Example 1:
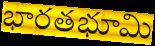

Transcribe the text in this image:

భారతభూమి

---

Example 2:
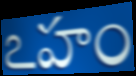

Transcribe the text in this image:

ఽహం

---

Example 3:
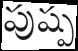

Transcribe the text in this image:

పుష్ప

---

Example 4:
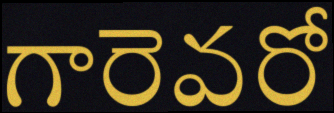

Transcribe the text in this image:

గారెవరో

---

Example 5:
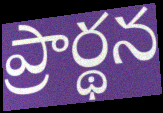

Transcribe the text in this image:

ప్రార్థన